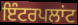
ਇੰਟਰਪਲਾਂਟ